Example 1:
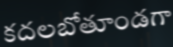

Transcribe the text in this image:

కదలబోతూండగా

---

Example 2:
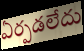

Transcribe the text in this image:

ఏర్పడలేదు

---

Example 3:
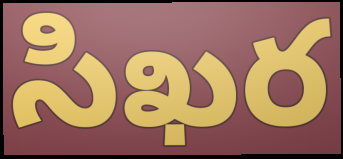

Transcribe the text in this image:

సిఖర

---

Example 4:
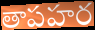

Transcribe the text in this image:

తాపహర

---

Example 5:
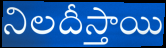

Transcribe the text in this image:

నిలదీస్తాయి